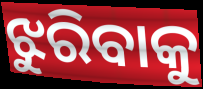
ଝୁରିବାକୁ